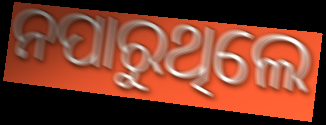
ନପାରୁଥିଲେ